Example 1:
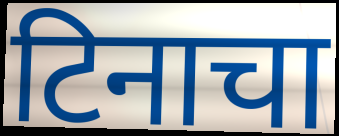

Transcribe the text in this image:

टिनाचा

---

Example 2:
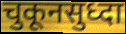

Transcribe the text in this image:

चुकूनसुध्दा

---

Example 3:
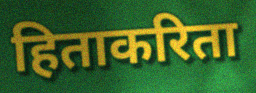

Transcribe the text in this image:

हिताकरिता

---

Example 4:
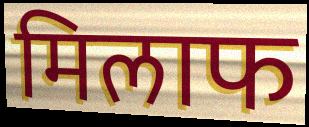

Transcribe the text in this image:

मिलाफ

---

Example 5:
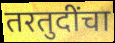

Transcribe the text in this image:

तरतुदींचा